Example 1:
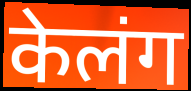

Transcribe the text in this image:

केलंग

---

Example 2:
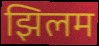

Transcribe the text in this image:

झिलम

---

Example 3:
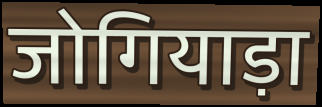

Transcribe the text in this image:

जोगियाड़ा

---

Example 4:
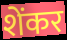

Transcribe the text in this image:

शेंकर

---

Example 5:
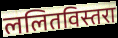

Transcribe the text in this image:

ललितविस्तरा